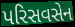
પરિસવસેન